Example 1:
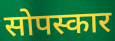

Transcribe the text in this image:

सोपस्कार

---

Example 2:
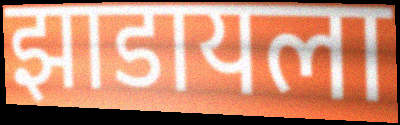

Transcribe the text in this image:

झाडायला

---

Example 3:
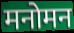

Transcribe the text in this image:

मनोमन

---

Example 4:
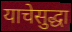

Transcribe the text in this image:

याचेसुद्धा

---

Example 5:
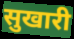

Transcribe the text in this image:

सुखारी